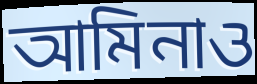
আমিনাও